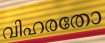
വിഹരതോ